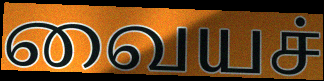
வையச்